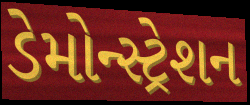
ડેમોન્સ્ટ્રેશન